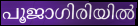
പൂജാഗിരിയിൽ